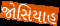
જોસિયાહ